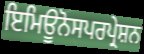
ਇਮਿਊਨੋਸਪਰਪ੍ਰੇਸ਼ਨ